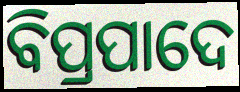
ବିପ୍ରପାଦେ